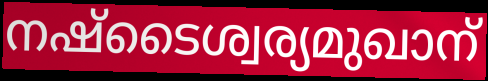
നഷ്ടൈശ്വര്യമുഖാന്